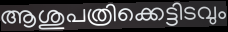
ആശുപത്രിക്കെട്ടിടവും